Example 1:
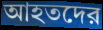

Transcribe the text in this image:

আহতদের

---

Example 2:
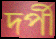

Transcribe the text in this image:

দর্পী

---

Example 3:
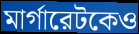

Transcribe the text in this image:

মার্গারেটকেও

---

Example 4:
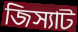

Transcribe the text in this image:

জিস্যাট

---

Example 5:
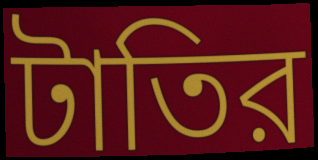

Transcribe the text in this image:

টাতির